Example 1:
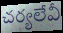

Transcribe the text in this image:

చర్యలేవీ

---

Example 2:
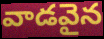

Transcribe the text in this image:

వాడవైన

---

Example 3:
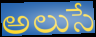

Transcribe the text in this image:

అలుసే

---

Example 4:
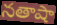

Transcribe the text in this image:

నతాషా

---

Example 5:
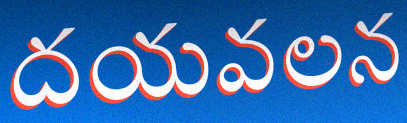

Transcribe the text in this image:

దయవలన